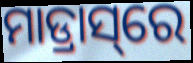
ମାଡ୍ରାସ୍‌ରେ